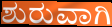
ಶುರುವಾಗಿ